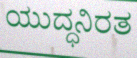
ಯುದ್ಧನಿರತ